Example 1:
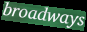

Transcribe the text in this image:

broadways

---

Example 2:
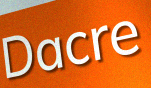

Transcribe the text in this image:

Dacre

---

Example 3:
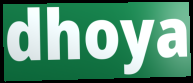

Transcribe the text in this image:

dhoya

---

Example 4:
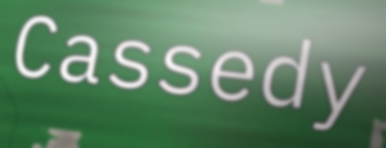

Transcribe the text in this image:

Cassedy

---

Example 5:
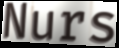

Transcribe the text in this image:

Nurs